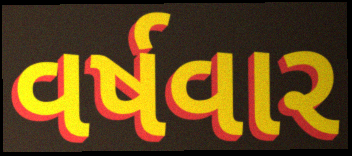
વર્ષવાર